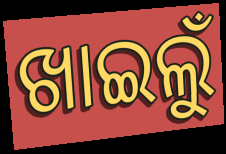
ଖାଇଲୁଁ